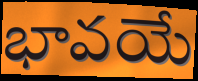
భావయే